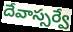
దేవాస్సర్వే